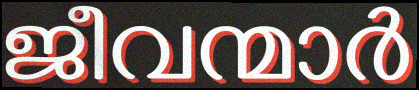
ജീവന്മാർ